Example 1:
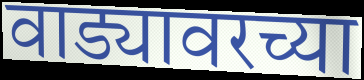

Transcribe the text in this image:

वाड्यावरच्या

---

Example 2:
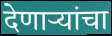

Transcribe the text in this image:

देणाऱ्यांचा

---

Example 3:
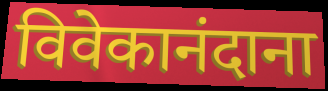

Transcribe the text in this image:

विवेकानंदाना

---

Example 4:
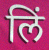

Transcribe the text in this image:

लिं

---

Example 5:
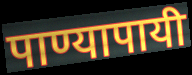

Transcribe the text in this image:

पाण्यापायी